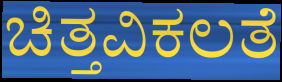
ಚಿತ್ತವಿಕಲತೆ